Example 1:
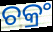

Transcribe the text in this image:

ଚକ୍ରଂ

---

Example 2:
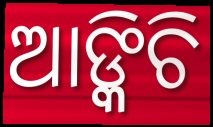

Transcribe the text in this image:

ଆଙ୍କିଚି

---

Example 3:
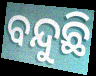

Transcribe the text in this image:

ବନ୍ଦୁଛି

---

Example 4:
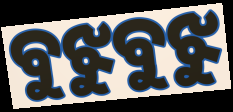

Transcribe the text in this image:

ବୁଝୁବୁଝୁ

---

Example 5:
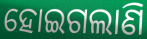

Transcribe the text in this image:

ହୋଇଗଲାଣି